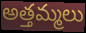
అత్తమ్మలు